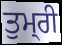
ਤੁਮ੍‍ਰੀ